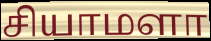
சியாமளா